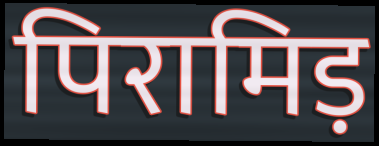
पिरामिड़